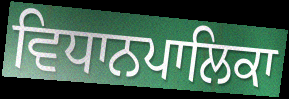
ਵਿਧਾਨਪਾਲਿਕਾ